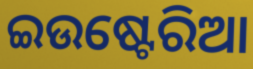
ଇଉଷ୍ଟେରିଆ